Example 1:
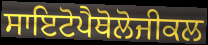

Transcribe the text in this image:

ਸਾਇਟੋਪੈਥੋਲੋਜੀਕਲ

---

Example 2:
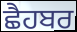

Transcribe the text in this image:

ਛੈਹਬਰ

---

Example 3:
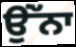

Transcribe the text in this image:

ਉਂੱਨਾ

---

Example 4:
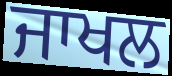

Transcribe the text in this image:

ਜਾਖਲ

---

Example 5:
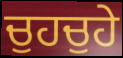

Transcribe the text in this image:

ਚੁਹਚੁਹੇ